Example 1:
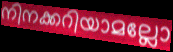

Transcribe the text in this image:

നിനക്കറിയാമല്ലോ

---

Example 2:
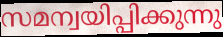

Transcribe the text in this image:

സമന്വയിപ്പിക്കുന്നു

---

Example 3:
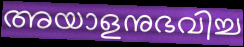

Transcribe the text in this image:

അയാളനുഭവിച്ച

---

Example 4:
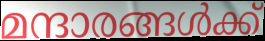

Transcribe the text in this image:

മന്ദാരങ്ങൾക്ക്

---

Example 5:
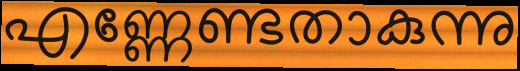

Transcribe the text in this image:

എണ്ണേണ്ടതാകുന്നു